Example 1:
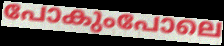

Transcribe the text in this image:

പോകുംപോലെ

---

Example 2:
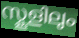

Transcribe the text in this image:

സ്കൂളിലും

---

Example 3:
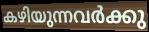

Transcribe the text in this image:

കഴിയുന്നവർക്കു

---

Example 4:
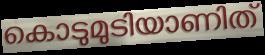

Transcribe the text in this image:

കൊടുമുടിയാണിത്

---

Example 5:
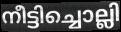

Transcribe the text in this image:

നീട്ടിച്ചൊല്ലി